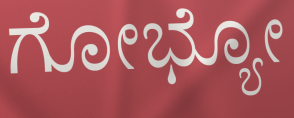
ಗೋಭ್ಯೋ